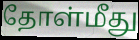
தோள்மீது